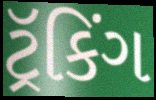
ટ્રૅકિંગ